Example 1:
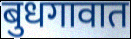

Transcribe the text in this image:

बुधगावात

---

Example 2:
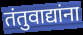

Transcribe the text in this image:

तंतुवाद्यांना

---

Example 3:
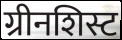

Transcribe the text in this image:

ग्रीनशिस्ट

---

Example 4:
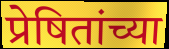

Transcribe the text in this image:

प्रेषितांच्या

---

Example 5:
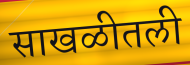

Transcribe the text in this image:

साखळीतली